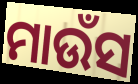
ମାଉଁସ